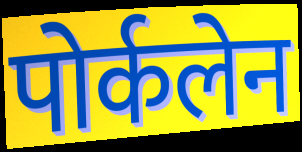
पोर्कलेन